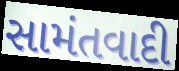
સામંતવાદી